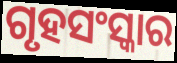
ଗୃହସଂସ୍କାର